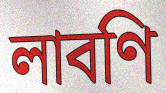
লাবণি